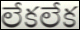
లేకలేక